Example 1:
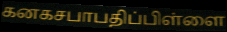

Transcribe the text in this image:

கனகசபாபதிப்பிள்ளை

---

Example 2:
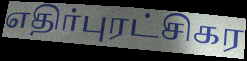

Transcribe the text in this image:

எதிர்புரட்சிகர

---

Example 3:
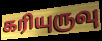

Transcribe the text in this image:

கரியுருவு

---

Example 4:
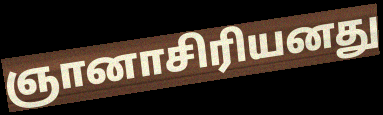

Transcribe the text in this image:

ஞானாசிரியனது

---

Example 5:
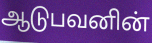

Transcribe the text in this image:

ஆடுபவனின்